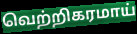
வெற்றிகரமாய்